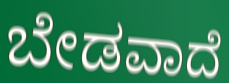
ಬೇಡವಾದೆ